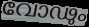
വോഢും